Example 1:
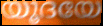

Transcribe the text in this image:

യൂദയേ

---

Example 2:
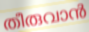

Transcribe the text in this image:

തീരുവാൻ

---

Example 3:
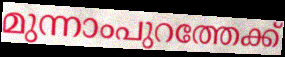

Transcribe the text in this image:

മുന്നാംപുറത്തേക്ക്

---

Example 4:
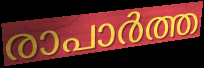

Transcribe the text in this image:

രാപാർത്ത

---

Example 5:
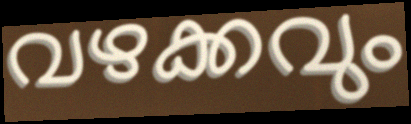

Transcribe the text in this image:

വഴക്കവും